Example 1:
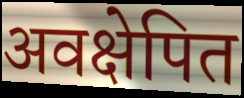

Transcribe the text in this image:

अवक्षेपित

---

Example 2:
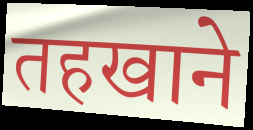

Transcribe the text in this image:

तहखाने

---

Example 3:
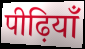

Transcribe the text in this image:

पीढ़ियाँ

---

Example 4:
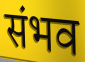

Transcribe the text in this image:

संभव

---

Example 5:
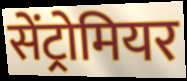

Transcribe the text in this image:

सेंट्रोमियर